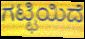
ಗಟ್ಟಿಯಿದೆ